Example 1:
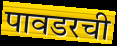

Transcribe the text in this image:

पावडरची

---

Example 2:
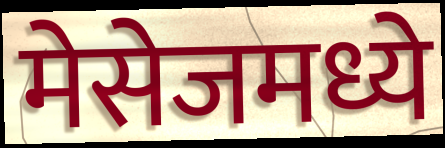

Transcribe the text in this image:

मेसेजमध्ये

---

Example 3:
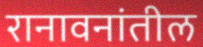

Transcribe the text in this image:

रानावनांतील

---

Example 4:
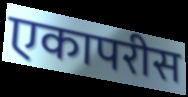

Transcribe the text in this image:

एकापरीस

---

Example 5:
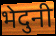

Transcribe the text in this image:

भेदुनी